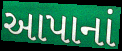
આપાનાં